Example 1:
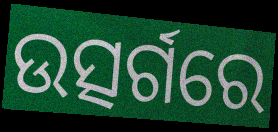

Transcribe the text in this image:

ଉତ୍ସର୍ଗରେ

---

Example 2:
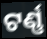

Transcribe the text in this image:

ଟର୍ଣ୍ଣ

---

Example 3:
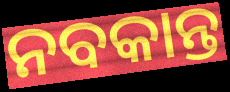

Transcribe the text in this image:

ନବକାନ୍ତ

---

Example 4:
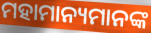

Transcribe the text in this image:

ମହାମାନ୍ୟମାନଙ୍କ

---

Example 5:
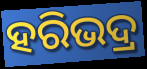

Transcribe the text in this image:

ହରିଭଦ୍ର